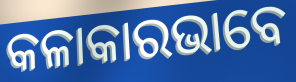
କଳାକାରଭାବେ